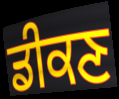
ਡੀਕਣ